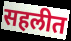
सहलीत